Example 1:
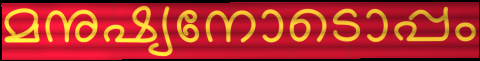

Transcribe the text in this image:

മനുഷ്യനോടൊപ്പം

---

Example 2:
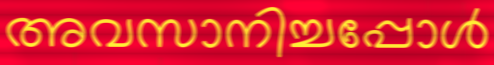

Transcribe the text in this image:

അവസാനിച്ചപ്പോൾ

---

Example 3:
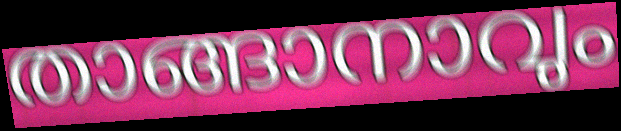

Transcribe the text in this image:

താങ്ങാനാവും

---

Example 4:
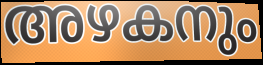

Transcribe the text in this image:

അഴകനും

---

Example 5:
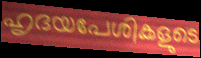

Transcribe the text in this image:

ഹൃദയപേശികളുടെ